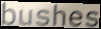
bushes